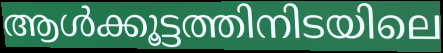
ആൾക്കൂട്ടത്തിനിടയിലെ